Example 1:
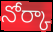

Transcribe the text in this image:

నోర్కా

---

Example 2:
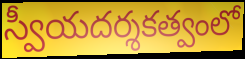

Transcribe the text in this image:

స్వీయదర్శకత్వంలో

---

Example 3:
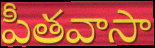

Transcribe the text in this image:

పీతవాసా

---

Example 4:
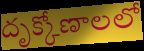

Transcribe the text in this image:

దృక్కోణాలలో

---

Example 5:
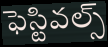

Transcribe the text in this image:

ఫెస్టివల్స్